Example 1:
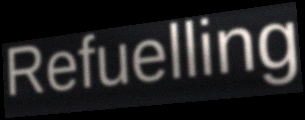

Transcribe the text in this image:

Refuelling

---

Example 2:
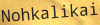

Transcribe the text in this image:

Nohkalikai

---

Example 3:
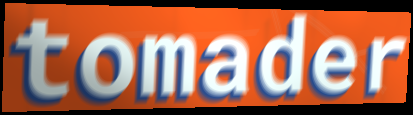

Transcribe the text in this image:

tomader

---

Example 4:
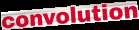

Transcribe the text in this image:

convolution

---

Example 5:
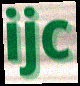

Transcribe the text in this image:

ijc